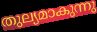
തുല്യമാകുന്നു